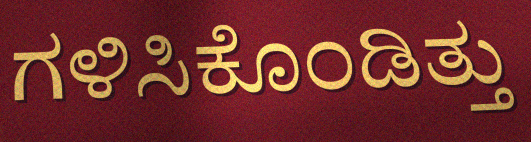
ಗಳಿಸಿಕೊಂಡಿತ್ತು